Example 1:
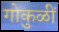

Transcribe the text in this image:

गोकुळीं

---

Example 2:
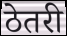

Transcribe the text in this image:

ठेतरी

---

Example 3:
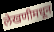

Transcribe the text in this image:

लेखणीमधून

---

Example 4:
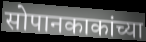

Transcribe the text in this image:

सोपानकाकांच्या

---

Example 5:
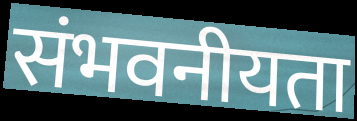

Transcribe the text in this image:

संभवनीयता